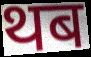
थब